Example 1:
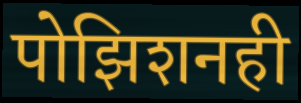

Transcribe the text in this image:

पोझिशनही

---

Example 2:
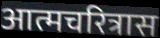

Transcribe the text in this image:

आत्मचरित्रास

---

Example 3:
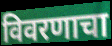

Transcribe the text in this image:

विवरणाचा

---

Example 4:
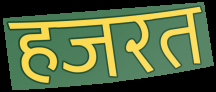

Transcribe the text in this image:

हजरत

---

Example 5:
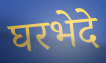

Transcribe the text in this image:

घरभेदे